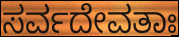
ಸರ್ವದೇವತಾಃ